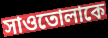
সাওতোলাকে